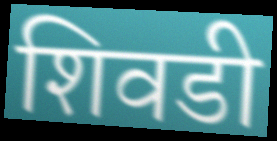
शिवडी